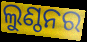
ଲୁଣ୍ଠନର